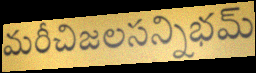
మరీచిజలసన్నిభమ్